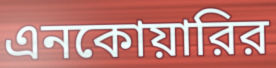
এনকোয়ারির